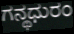
ಗನ್ಥಧುರಂ